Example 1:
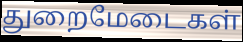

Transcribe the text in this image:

துறைமேடைகள்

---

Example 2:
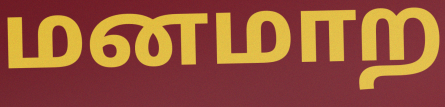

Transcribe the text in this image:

மனமாற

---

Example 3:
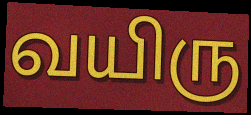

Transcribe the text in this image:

வயிரு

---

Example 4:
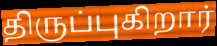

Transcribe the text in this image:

திருப்புகிறார்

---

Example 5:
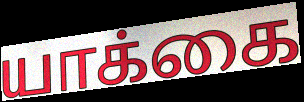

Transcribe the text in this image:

யாக்கை